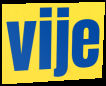
vije